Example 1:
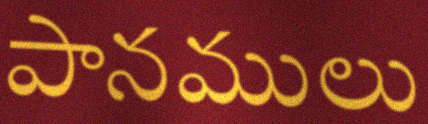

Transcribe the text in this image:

పానములు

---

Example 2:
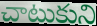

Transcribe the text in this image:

చాటుకుని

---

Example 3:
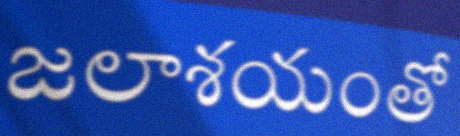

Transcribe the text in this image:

జలాశయంతో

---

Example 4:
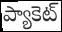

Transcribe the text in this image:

ప్యాకెట్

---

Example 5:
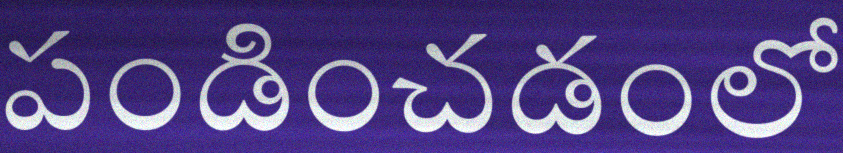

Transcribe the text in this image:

పండించడంలో